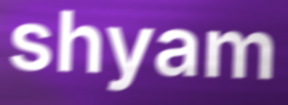
shyam